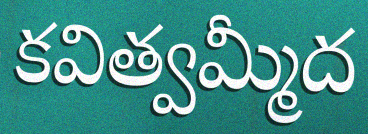
కవిత్వమ్మీద